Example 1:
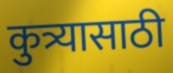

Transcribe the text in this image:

कुत्र्यासाठी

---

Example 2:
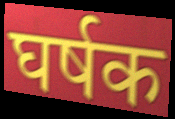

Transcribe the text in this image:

घर्षक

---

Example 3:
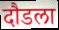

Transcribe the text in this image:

दौडला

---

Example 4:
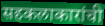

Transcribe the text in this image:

सहकलाकारांची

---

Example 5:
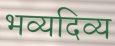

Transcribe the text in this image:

भव्यदिव्य